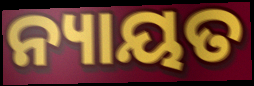
ନ୍ୟାୟତ